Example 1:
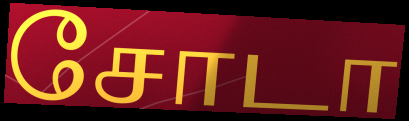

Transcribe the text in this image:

சோடா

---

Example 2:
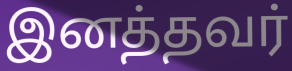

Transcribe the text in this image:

இனத்தவர்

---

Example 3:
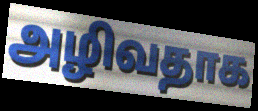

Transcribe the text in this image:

அழிவதாக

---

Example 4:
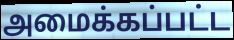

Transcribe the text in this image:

அமைக்கப்பட்ட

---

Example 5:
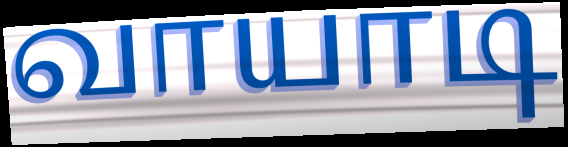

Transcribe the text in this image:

வாயாடி